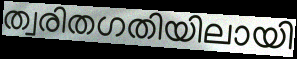
ത്വരിതഗതിയിലായി